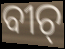
ବୀଚ୍